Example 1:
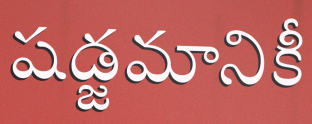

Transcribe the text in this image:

షడ్జమానికీ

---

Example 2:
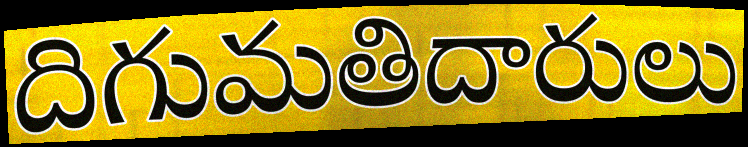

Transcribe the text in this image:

దిగుమతిదారులు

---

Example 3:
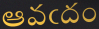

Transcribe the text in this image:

ఆవఁదం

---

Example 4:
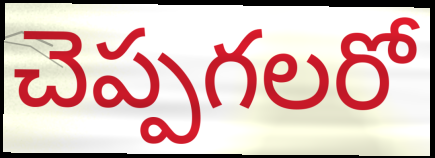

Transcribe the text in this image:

చెప్పగలరో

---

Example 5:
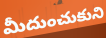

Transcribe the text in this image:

మీదుంచుకుని